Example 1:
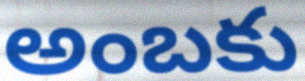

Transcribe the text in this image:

అంబకు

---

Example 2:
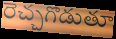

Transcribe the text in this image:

రెచ్చగొడుతూ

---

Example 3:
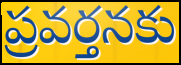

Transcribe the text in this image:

ప్రవర్తనకు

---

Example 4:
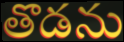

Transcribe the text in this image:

తొడను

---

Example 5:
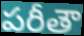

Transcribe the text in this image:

పరీతౌ